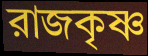
রাজকৃষ্ণ